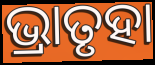
ଭ୍ରାତୃହା